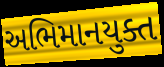
અભિમાનયુક્ત